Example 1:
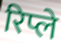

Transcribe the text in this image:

रिप्ले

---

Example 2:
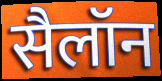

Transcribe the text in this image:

सैलॉन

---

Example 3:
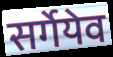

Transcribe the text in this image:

सर्गेयेव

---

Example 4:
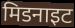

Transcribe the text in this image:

मिडनाइट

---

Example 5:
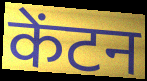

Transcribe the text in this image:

केंटन